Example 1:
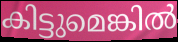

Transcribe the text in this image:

കിട്ടുമെങ്കിൽ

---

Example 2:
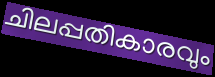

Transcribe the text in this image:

ചിലപ്പതികാരവും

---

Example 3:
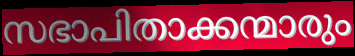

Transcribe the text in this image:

സഭാപിതാക്കന്മാരും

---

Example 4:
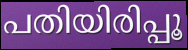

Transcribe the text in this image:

പതിയിരിപ്പൂ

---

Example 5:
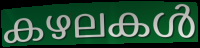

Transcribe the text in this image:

കഴലകൾ